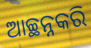
ଆଚ୍ଛନ୍ନକରି